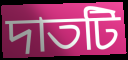
দাতটি